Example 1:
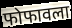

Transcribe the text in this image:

फोफावला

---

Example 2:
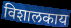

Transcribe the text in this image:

विशालकाय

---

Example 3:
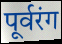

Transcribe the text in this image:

पूर्वरंग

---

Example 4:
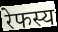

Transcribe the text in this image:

रेफस्य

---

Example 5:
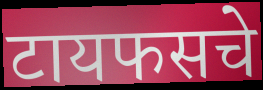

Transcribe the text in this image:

टायफसचे